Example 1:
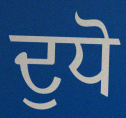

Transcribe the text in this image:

ਦੁਧੋ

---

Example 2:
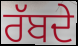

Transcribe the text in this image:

ਰੱਬਦੇ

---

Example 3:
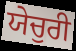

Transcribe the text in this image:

ਯੇਚੁਰੀ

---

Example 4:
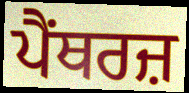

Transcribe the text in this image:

ਪੈਂਥਰਜ਼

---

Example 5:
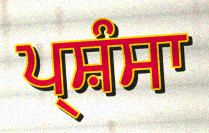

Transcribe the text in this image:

ਪ੍ਸ਼ੰਸਾ